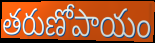
తరుణోపాయం